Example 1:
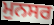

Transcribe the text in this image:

ਮੁਨਸਰ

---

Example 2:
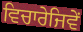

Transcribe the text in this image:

ਵਿਚਾਰੇਜਿਵੇਂ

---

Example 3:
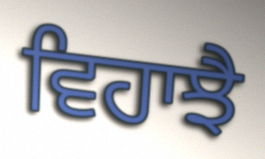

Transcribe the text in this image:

ਵਿਹਾਝੈ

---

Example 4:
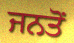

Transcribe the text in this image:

ਜਨਤੋਂ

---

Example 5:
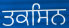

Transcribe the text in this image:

ਤਕਸਿਨ